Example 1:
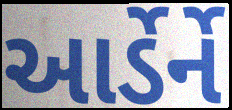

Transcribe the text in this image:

આર્ડેર્ને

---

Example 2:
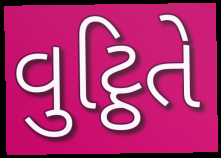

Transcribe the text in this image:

વુટ્ઠિતે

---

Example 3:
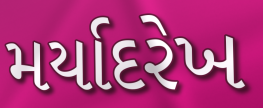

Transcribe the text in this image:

મર્યાદરેખ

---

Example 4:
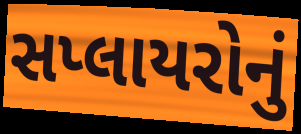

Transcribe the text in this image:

સપ્લાયરોનું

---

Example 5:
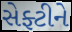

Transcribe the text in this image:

સેફ્ટીને